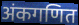
अंकगणित